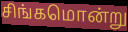
சிங்கமொன்று